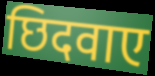
छिदवाए